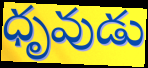
ధృవుడు